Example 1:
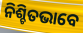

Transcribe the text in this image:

ନିଶ୍ଚିତଭାବେ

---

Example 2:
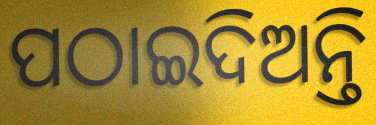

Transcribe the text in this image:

ପଠାଇଦିଅନ୍ତି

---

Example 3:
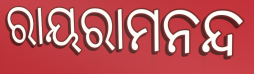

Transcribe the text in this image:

ରାୟରାମନନ୍ଦ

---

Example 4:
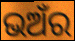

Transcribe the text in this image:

ଭଅଁର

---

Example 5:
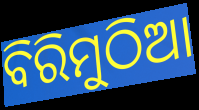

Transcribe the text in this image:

ବିରିମୁଠିଆ